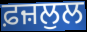
ਫ਼ਜ਼ਲੁਲ